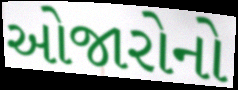
ઓજારોનો